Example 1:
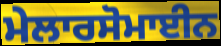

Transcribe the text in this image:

ਮੇਲਾਰਸੋਮਾਈਨ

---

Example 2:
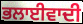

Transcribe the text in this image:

ਭਲਾਈਵਾਦੀ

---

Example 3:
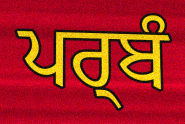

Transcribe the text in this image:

ਪਰ੍ਬੰ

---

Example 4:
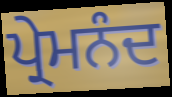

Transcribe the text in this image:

ਪ੍ਰੇਮਨੰਦ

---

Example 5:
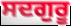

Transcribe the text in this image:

ਸਦਗੁਰੂ